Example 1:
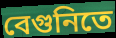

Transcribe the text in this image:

বেগুনিতে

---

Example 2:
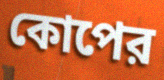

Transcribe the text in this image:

কোপের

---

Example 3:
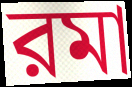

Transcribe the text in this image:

রমা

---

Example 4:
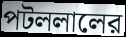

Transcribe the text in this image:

পটললালের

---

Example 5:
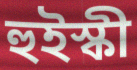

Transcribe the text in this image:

হুইস্কী